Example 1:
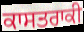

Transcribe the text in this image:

ਕਾਸਤਰਾਕੀ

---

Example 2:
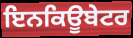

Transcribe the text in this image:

ਇਨਕਿਊਬੇਟਰ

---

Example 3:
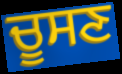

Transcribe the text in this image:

ਚੂਸਣ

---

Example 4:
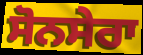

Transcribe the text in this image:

ਸੋਨਸੇਰਾ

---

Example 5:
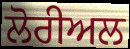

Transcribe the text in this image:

ਲੋਰੀਅਲ